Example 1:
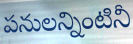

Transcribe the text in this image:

పనులన్నింటినీ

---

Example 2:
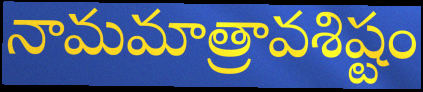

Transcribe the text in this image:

నామమాత్రావశిష్టం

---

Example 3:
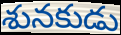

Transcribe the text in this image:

శునకుడు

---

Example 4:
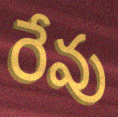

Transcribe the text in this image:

రేవు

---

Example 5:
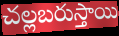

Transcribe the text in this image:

చల్లబరుస్తాయి